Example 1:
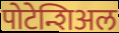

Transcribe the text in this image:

पोटेन्शिअल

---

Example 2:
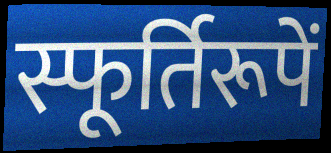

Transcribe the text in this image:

स्फूर्तिरूपें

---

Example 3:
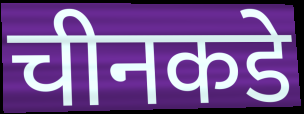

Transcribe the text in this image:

चीनकडे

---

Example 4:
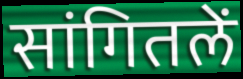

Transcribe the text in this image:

सांगितलें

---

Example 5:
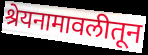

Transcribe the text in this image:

श्रेयनामावलीतून